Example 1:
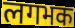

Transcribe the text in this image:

लगभक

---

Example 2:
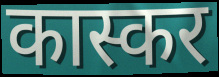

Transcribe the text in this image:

कास्कर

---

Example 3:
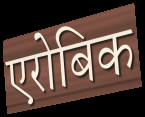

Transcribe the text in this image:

एरोबिक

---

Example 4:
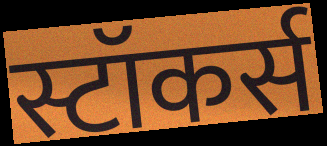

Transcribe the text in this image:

स्टॉकर्स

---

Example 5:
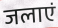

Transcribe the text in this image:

जलाएं